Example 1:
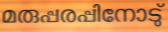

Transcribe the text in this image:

മരുപ്പരപ്പിനോടു്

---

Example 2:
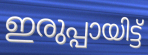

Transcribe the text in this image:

ഇരുപ്പായിട്ട്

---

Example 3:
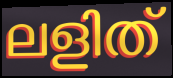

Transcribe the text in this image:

ലളിത്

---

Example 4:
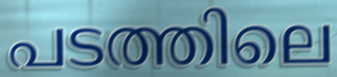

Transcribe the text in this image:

പടത്തിലെ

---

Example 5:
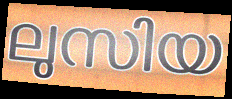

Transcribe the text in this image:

ലുസിയ